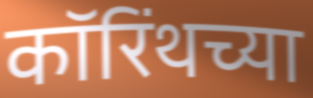
कॉरिंथच्या